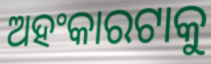
ଅହଂକାରଟାକୁ